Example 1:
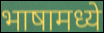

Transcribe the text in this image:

भाषामध्ये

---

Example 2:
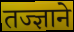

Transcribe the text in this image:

तज्ज्ञाने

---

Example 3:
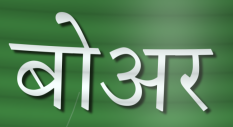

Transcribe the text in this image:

बोअर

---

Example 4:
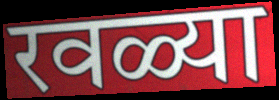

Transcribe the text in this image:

रवळ्या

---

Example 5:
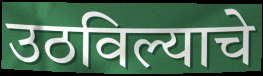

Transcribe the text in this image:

उठविल्याचे